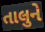
તાલુને